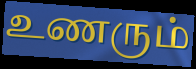
உணரும்